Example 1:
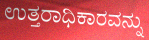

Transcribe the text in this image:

ಉತ್ತರಾಧಿಕಾರವನ್ನು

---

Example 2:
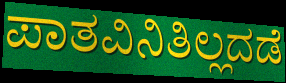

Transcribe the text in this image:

ಪಾತವಿನಿತಿಲ್ಲದಡೆ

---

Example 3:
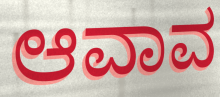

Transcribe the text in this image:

ಆವಾವ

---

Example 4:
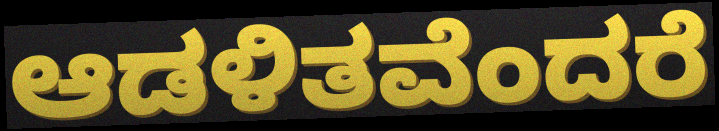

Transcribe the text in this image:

ಆಡಳಿತವೆಂದರೆ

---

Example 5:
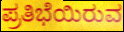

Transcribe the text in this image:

ಪ್ರತಿಭೆಯಿರುವ